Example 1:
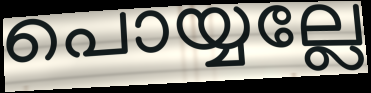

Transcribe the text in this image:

പൊയ്യല്ലേ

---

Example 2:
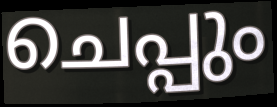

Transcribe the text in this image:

ചെപ്പും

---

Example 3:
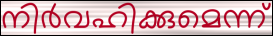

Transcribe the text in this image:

നിർവഹിക്കുമെന്ന്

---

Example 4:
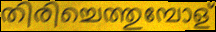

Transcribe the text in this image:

തിരിച്ചെത്തുമ്പോള്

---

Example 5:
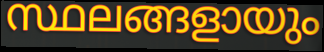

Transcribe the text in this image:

സ്ഥലങ്ങളായും